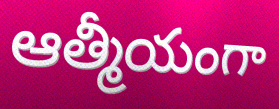
ఆత్మీయంగా